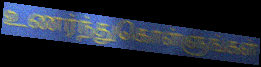
உணர்ந்துகொள்ளுங்கள்